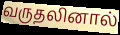
வருதலினால்